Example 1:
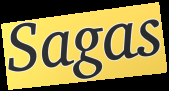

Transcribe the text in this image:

Sagas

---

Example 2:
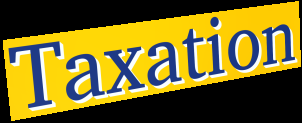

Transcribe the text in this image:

Taxation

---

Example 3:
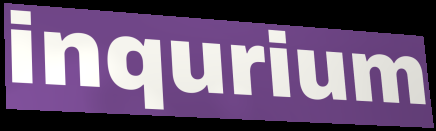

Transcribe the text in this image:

inqurium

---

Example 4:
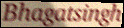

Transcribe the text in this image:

Bhagatsingh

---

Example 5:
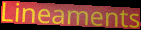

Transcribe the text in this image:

Lineaments